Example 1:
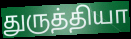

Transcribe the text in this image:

துருத்தியா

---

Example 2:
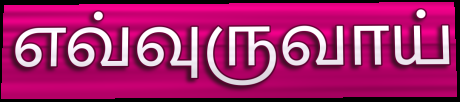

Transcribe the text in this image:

எவ்வுருவாய்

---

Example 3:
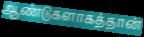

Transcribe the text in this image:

ஆண்டுகளாகத்தான்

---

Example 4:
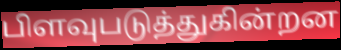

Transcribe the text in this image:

பிளவுபடுத்துகின்றன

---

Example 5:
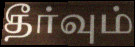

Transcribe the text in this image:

தீர்வும்